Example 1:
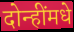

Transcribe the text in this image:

दोन्हींमधे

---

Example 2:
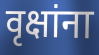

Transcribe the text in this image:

वृक्षांना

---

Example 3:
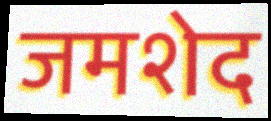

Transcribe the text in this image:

जमशेद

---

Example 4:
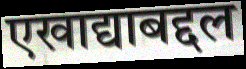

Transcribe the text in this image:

एखाद्याबद्दल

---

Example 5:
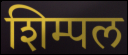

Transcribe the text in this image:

शिम्पल